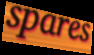
spares